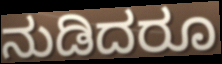
ನುಡಿದರೂ